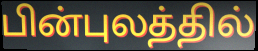
பின்புலத்தில்